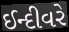
ઈન્દીવરે